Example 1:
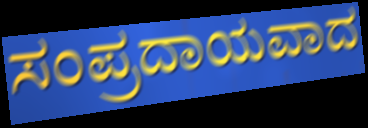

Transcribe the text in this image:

ಸಂಪ್ರದಾಯವಾದ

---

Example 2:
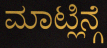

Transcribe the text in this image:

ಮಾಟ್ಲಿನ್ಗೆ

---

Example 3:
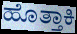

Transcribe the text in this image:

ಹೊತ್ತಾಕಿ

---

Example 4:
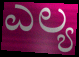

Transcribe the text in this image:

ಎಲ್ಯ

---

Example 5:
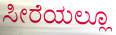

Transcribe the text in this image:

ಸೀರೆಯಲ್ಲೂ